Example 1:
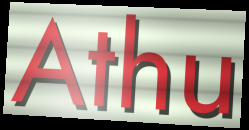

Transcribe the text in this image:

Athu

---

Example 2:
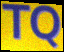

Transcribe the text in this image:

TQ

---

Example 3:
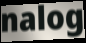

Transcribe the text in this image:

nalog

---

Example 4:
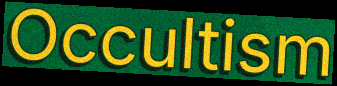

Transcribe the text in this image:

Occultism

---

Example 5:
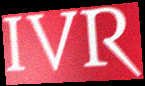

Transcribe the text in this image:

IVR